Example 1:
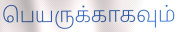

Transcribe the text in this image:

பெயருக்காகவும்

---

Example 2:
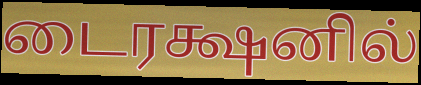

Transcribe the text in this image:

டைரக்ஷனில்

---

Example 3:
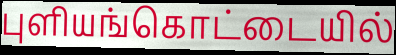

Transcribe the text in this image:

புளியங்கொட்டையில்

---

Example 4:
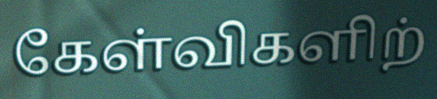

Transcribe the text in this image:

கேள்விகளிற்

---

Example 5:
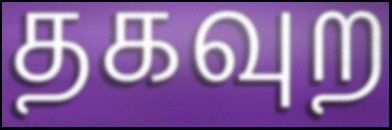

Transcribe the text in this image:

தகவுற